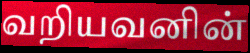
வறியவனின்